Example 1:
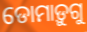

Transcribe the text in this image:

ଡୋମାଡ଼ୁଗୁ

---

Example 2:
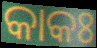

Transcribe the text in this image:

କାକଃ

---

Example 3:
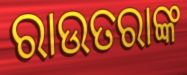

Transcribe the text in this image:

ରାଉତରାଙ୍କ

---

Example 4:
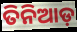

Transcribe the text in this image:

ତିନିଆଡ଼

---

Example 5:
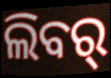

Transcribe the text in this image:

ଲିବର୍